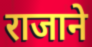
राजाने